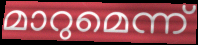
മാറുമെന്ന്